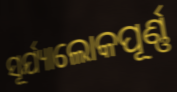
ସୂର୍ଯ୍ୟାଲୋକପୂର୍ଣ୍ଣ